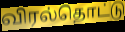
விரல்தொட்டு